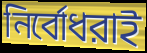
নির্বোধরাই